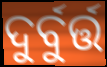
ଦୁର୍ବୁର୍ତ୍ତ